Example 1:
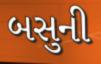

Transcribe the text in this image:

બસુની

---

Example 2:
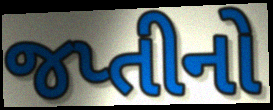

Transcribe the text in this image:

જપ્તીનો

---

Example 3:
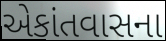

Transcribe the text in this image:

એકાંતવાસના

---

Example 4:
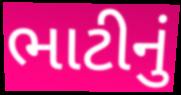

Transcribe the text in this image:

ભાટીનું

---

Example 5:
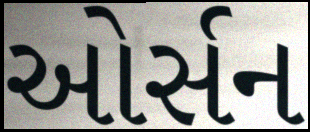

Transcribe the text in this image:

ઓર્સન